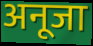
अनूजा